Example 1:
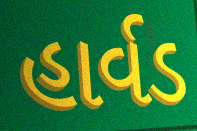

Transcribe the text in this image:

હાર્વડ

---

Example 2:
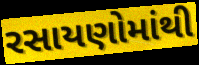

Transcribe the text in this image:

રસાયણોમાંથી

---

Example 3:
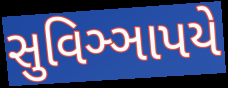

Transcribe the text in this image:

સુવિઞ્ઞાપયે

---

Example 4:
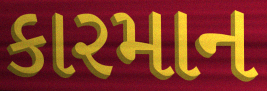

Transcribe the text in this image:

કારમાન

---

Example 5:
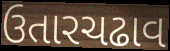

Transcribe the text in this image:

ઉતારચઢાવ